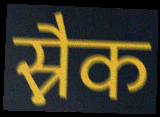
स्नैक